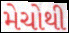
મેચોથી